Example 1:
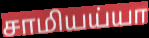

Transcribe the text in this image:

சாமியய்யா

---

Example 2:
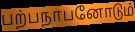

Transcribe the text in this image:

பற்பநாபனோடும்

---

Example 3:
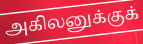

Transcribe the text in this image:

அகிலனுக்குக்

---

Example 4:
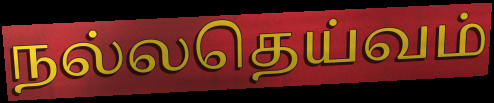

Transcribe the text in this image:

நல்லதெய்வம்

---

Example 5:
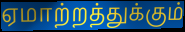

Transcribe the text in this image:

ஏமாற்றத்துக்கும்